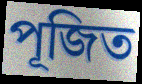
পূজিত